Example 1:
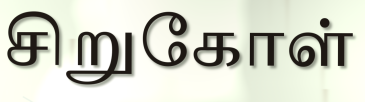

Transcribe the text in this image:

சிறுகோள்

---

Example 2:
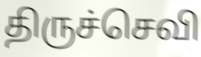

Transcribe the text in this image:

திருச்செவி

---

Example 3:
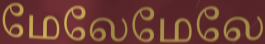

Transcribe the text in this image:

மேலேமேலே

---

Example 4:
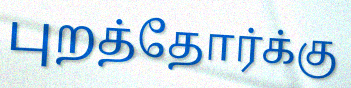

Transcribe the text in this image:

புறத்தோர்க்கு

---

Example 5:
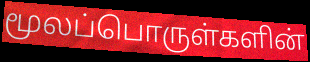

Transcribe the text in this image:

மூலப்பொருள்களின்